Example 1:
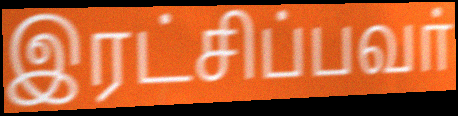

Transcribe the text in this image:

இரட்சிப்பவர்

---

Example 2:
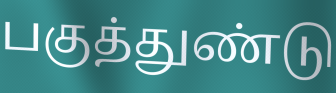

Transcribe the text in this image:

பகுத்துண்டு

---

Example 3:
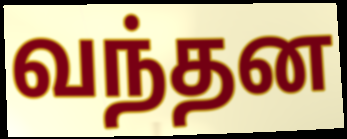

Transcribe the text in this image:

வந்தன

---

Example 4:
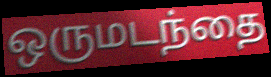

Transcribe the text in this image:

ஒருமடந்தை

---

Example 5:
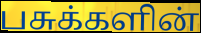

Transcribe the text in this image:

பசுக்களின்